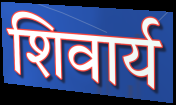
शिवार्य